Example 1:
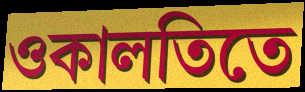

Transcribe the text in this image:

ওকালতিতে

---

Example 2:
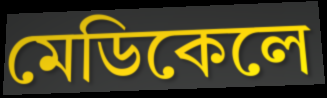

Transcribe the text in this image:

মেডিকেলে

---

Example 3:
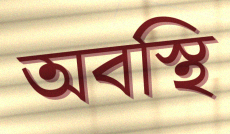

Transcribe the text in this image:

অবস্থি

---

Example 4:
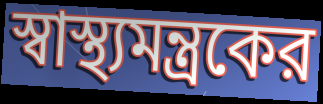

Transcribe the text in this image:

স্বাস্থ্যমন্ত্রকের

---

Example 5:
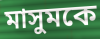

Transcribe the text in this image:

মাসুমকে